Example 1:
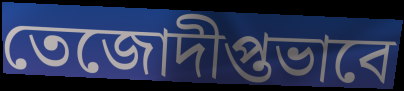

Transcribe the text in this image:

তেজোদীপ্তভাবে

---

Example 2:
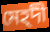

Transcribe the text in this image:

মেহ্দী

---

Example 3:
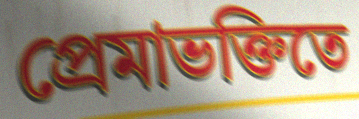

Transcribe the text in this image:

প্রেমাভক্তিতে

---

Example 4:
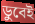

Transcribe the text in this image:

ডুবেই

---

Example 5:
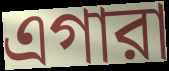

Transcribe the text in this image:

এগারা